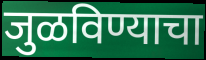
जुळविण्याचा